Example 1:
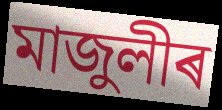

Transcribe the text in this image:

মাজুলীৰ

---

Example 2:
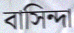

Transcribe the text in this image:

বাসিন্দা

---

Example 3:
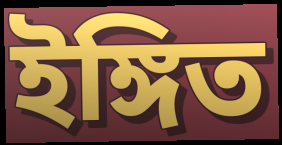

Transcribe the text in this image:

ইঙ্গিত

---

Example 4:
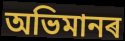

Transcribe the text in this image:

অভিমানৰ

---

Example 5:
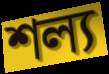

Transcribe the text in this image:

শল্য